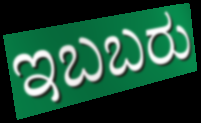
ಇಬಬರು